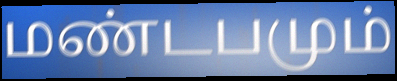
மண்டபமும்